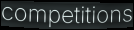
competitions